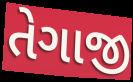
તેગાજી